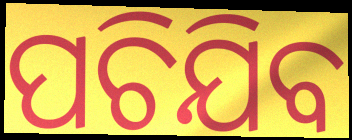
ପଚିଯିବ